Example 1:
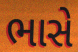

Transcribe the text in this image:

ભાસે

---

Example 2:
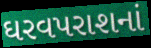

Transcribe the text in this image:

ઘરવપરાશનાં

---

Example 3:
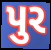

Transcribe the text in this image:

પુર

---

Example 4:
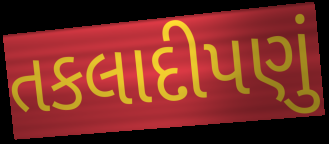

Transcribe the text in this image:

તકલાદીપણું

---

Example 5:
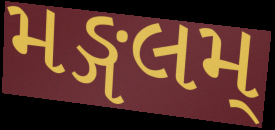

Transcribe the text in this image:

મઙ્ગલમ્